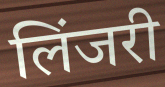
लिंजरी